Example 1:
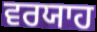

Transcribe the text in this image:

ਵਰਯਾਹ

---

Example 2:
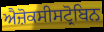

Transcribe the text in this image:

ਐਜ਼ੋਕਸੀਸਟ੍ਰੋਬਿਨ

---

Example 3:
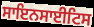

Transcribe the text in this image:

ਸਾਇਨਸਾਈਟਿਸ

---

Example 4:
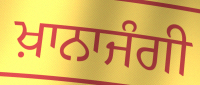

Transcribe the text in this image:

ਖ਼ਾਨਾਜੰਗੀ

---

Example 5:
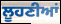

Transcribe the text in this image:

ਲੂਹਣੀਆਂ